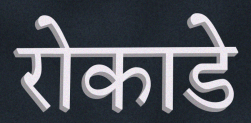
रोकाडे